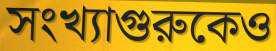
সংখ্যাগুরুকেও